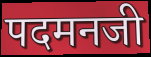
पदमनजी